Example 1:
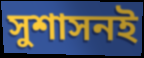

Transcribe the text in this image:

সুশাসনই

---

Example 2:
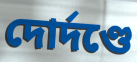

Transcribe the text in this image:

দোর্দণ্ডে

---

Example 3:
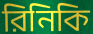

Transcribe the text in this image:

রিনিকি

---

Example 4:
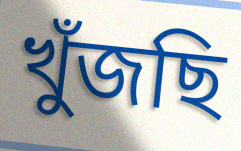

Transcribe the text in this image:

খুঁজছি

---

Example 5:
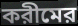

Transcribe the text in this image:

করীমের